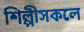
শিল্পীসকলে